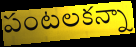
పంటలకన్నా